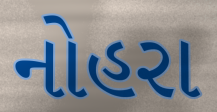
નોહરા